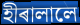
হীৰালালে